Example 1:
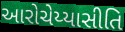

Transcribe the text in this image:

આરોચેય્યાસીતિ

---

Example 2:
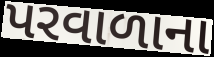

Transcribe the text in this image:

પરવાળાના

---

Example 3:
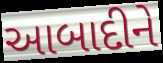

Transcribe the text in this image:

આબાદીને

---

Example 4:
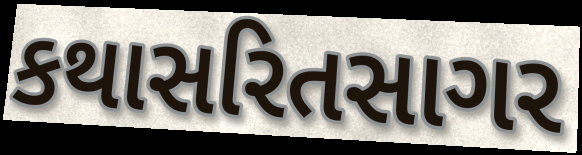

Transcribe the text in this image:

કથાસરિતસાગર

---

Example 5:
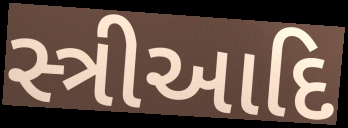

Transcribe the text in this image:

સ્ત્રીઆદિ